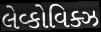
લેવ્કોવિક્ઝ